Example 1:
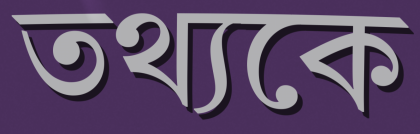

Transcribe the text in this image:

তথ্যকে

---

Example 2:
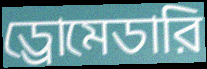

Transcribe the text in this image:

ড্রোমেডারি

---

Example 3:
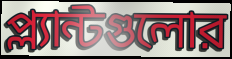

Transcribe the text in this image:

প্ল্যান্টগুলোর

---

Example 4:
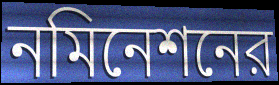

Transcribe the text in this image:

নমিনেশনের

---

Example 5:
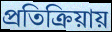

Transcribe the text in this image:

প্রতিক্রিয়ায়